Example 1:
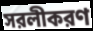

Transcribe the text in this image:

সরলীকরণ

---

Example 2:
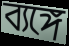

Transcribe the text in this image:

ব্যঙ্গে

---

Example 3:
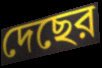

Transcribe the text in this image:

দেছের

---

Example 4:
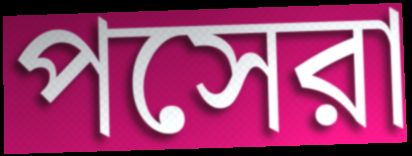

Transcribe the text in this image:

পসেরা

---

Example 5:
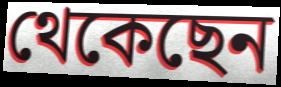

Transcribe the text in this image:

থেকেছেন